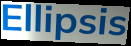
Ellipsis